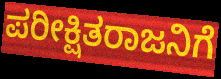
ಪರೀಕ್ಷಿತರಾಜನಿಗೆ